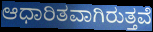
ಆಧಾರಿತವಾಗಿರುತ್ತವೆ